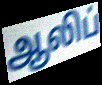
ஆலிப்